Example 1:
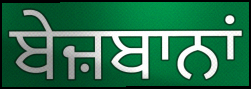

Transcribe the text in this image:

ਬੇਜ਼ਬਾਨਾਂ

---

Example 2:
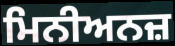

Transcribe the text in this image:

ਮਿਨੀਅਨਜ਼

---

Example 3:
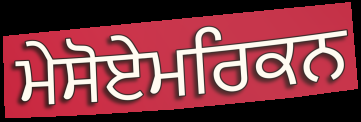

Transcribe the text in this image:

ਮੇਸੋਏਮਰਿਕਨ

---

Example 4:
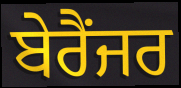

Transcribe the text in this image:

ਬੇਰੈਂਜਰ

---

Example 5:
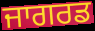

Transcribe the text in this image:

ਜਾਗਰਡ